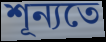
শূন্যতে